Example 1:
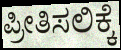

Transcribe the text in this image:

ಪ್ರೀತಿಸಲಿಕ್ಕೆ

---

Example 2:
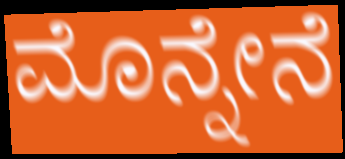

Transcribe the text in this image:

ಮೊನ್ನೇನೆ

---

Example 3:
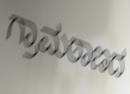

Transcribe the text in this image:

ಗ್ರಾಮಠಾಣದ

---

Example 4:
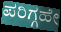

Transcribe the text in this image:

ಪರಿಗ್ಗಹೇ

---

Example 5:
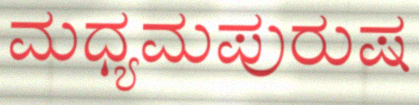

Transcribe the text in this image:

ಮಧ್ಯಮಪುರುಷ